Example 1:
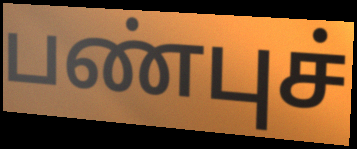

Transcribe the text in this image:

பண்புச்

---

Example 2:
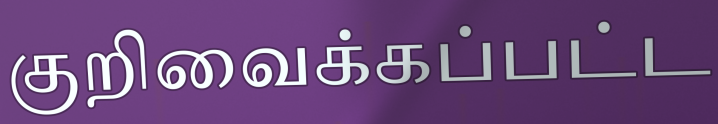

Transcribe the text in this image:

குறிவைக்கப்பட்ட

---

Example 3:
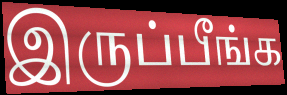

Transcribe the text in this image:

இருப்பீங்க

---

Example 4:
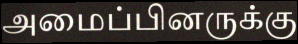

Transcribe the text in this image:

அமைப்பினருக்கு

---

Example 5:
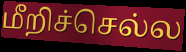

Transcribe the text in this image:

மீறிச்செல்ல